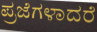
ಪ್ರಜೆಗಳಾದರೆ